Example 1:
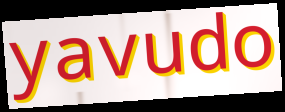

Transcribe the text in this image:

yavudo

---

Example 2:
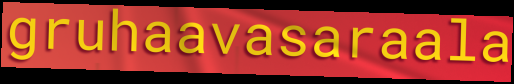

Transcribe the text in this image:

gruhaavasaraala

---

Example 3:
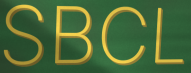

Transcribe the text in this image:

SBCL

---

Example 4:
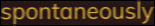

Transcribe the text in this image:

spontaneously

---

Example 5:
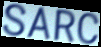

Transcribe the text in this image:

SARC